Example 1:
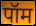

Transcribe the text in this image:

पॉम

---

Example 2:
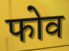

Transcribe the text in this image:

फोव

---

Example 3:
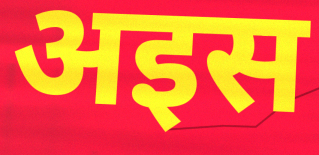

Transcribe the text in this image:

अइस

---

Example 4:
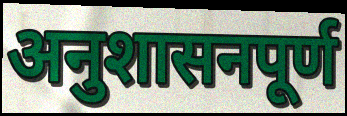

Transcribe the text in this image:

अनुशासनपूर्ण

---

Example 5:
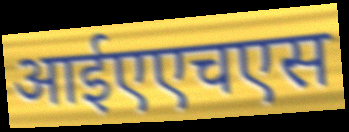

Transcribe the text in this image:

आईएएचएस